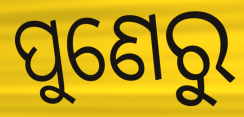
ପୁଣେରୁ